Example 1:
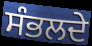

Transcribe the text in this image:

ਸੰਭਲਦੇ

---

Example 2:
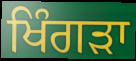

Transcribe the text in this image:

ਖਿੰਗੜਾ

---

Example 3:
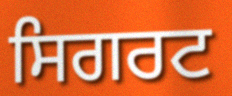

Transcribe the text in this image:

ਸਿਗਰਟ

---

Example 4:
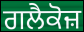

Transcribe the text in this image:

ਗਲੈਕੋਜ਼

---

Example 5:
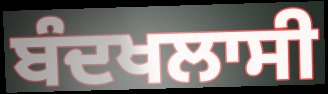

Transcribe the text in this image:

ਬੰਦਖਲਾਸੀ